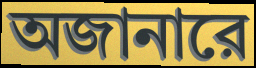
অজানারে